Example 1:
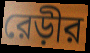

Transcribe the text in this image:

রেড়ীর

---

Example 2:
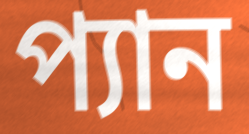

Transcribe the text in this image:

প্যান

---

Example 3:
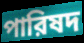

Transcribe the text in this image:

পারিষদ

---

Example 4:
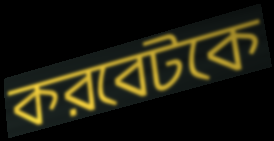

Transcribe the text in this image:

করবেটকে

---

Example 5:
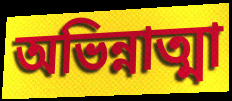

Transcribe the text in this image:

অভিন্নাত্মা